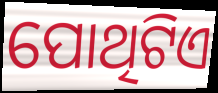
ପୋଥିଟିଏ